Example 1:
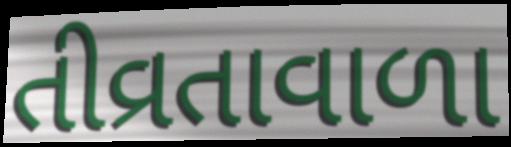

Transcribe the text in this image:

તીવ્રતાવાળા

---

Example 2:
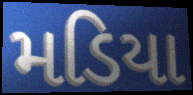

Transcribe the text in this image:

મડિયા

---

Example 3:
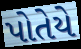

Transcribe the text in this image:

પોતેયે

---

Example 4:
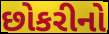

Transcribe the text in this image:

છોકરીનો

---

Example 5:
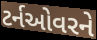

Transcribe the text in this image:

ટર્નઓવરને